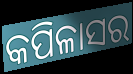
କପିଳାସର